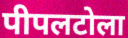
पीपलटोला